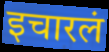
इचारलं